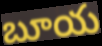
బూయ